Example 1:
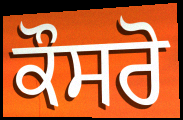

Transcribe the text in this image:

ਕੌਸਰੋ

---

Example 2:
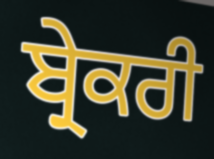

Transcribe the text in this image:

ਬ੍ਰੇਕਰੀ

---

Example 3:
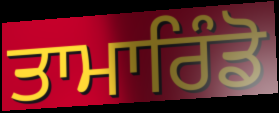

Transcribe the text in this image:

ਤਾਮਾਰਿੰਡੋ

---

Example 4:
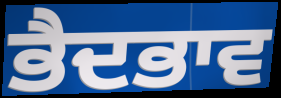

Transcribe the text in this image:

ਭੈਦਭਾਵ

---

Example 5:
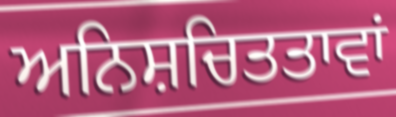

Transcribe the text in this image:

ਅਨਿਸ਼ਚਿਤਤਾਵਾਂ